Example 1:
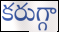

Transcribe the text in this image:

కరుగ్గా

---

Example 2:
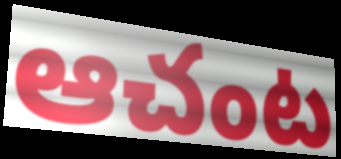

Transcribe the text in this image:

ఆచంట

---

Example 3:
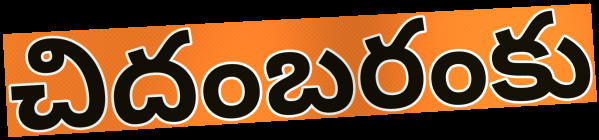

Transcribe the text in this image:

చిదంబరంకు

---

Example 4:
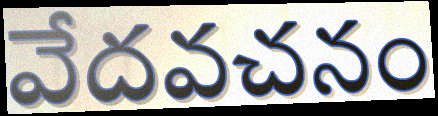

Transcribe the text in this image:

వేదవచనం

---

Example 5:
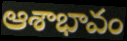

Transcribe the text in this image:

ఆశాభావం